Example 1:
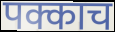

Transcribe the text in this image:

पक्काच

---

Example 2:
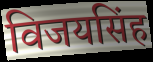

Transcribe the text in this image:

विजयसिंह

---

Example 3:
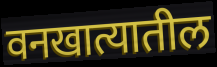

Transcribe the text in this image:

वनखात्यातील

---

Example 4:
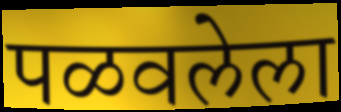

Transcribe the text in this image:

पळवलेला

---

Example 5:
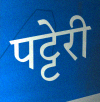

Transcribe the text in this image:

पट्टेरी